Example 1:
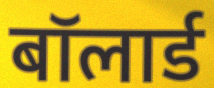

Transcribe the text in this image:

बॉलार्ड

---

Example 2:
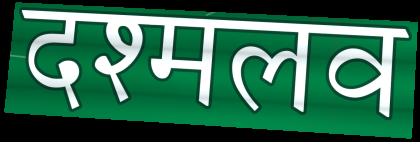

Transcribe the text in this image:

दश्मलव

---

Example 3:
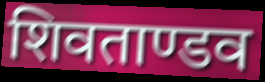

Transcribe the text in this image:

शिवताण्डव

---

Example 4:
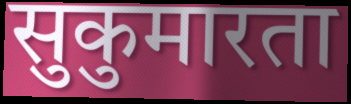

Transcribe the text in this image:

सुकुमारता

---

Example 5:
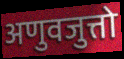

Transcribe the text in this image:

अणुवजुत्तो